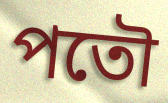
পতৌ